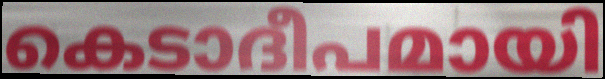
കെടാദീപമായി